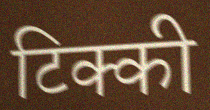
टिक्की